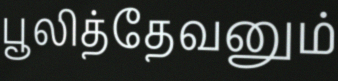
பூலித்தேவனும்